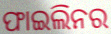
ଫାଇଲିନର